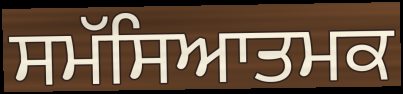
ਸਮੱਸਿਆਤਮਕ